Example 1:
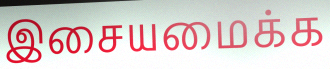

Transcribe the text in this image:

இசையமைக்க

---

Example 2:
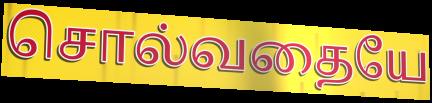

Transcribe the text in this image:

சொல்வதையே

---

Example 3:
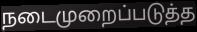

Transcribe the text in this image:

நடைமுறைப்படுத்த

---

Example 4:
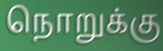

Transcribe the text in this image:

நொறுக்கு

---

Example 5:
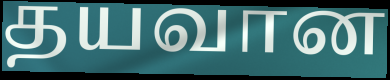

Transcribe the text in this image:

தயவான